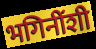
भगिनींशी